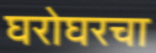
घरोघरचा